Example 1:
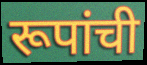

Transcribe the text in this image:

रूपांची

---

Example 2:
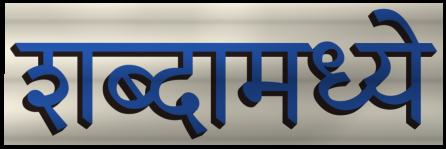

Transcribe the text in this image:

शब्दामध्ये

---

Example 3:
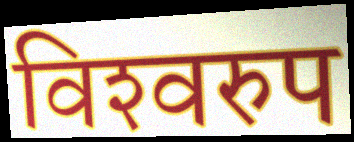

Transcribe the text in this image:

विश्वरुप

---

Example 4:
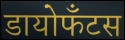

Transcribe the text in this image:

डायोफँटस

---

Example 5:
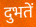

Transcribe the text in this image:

दुभतें